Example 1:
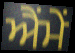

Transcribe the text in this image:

ਐਂਮੇਂ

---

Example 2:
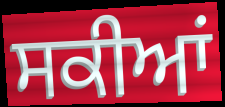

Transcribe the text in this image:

ਸਕੀਆਂ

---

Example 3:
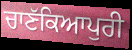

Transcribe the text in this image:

ਚਾਣੱਕਿਆਪੁਰੀ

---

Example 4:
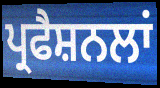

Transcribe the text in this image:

ਪ੍ਰਫੈਸ਼ਨਲਾਂ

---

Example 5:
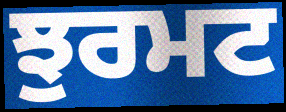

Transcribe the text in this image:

ਝੁਰਮਟ